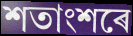
শতাংশৰে